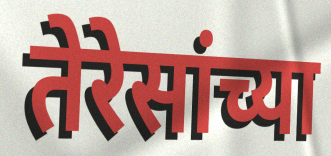
तेरेसांच्या